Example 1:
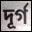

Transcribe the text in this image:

দূর্গ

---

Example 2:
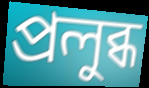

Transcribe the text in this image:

প্রলুব্ধ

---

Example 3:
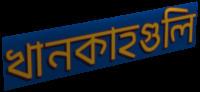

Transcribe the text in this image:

খানকাহগুলি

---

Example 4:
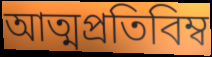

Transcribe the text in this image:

আত্মপ্রতিবিম্ব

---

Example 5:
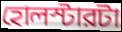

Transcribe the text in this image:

হোলস্টারটা